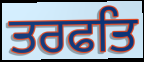
ਤਰਫਤਿ